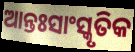
ଆନ୍ତଃସାଂସ୍କୃତିକ